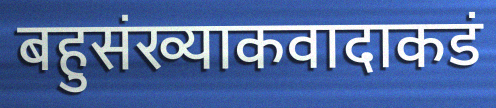
बहुसंख्याकवादाकडं